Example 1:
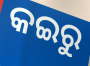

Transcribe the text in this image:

କଇରୁ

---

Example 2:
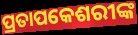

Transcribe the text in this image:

ପ୍ରତାପକେଶରୀଙ୍କ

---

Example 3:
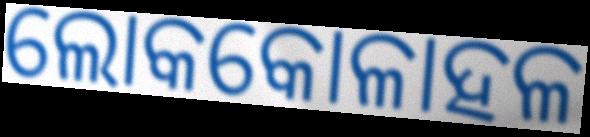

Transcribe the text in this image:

ଲୋକକୋଳାହଳ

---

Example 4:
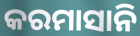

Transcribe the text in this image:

କରମାସାନି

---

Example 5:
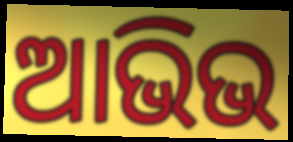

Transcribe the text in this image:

ଆଭିଭ